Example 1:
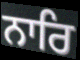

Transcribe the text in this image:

ਨਾਰਿ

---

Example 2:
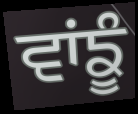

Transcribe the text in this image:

ਵਾਂਙੂੰ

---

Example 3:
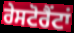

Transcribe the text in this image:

ਰੇਸਟੋਰੈਂਟਾਂ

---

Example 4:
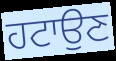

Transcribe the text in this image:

ਹਟਾਉਣ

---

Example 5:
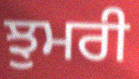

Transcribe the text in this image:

ਝੁਮਰੀ